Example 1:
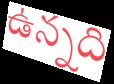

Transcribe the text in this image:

ఉన్నది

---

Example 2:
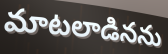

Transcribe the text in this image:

మాటలాడినను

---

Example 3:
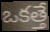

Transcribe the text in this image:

ఒకత్తే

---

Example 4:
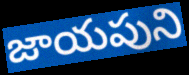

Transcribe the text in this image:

జాయపుని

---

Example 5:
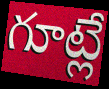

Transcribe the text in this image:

గూట్లే